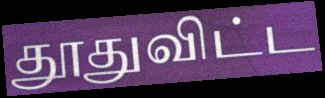
தூதுவிட்ட